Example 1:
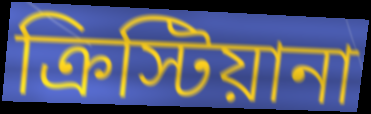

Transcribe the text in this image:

ক্রিস্টিয়ানা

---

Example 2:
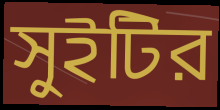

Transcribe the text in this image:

সুইটির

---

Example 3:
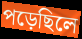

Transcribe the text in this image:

পড়েছিলে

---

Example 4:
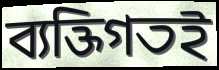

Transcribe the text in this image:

ব্যক্তিগতই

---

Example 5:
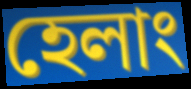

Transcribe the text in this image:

হেলাং